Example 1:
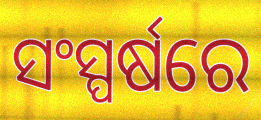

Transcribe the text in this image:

ସଂସ୍ପର୍ଷରେ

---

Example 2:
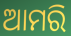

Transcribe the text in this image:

ଆମରି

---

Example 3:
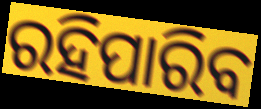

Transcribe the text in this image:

ରହିପାରିବ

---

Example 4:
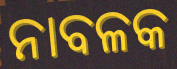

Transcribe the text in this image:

ନାବଳକ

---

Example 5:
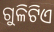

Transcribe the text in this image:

ଗୁଳିଟିଏ